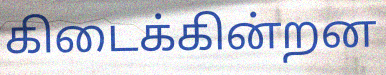
கிடைக்கின்றன